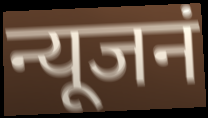
न्यूजनं